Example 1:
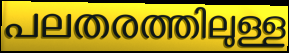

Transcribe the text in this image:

പലതരത്തിലുള്ള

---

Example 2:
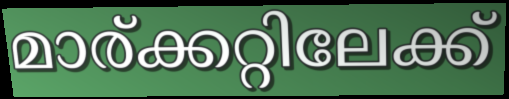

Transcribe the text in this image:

മാര്ക്കറ്റിലേക്ക്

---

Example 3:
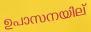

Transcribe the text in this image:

ഉപാസനയില്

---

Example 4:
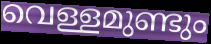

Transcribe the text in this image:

വെള്ളമുണ്ടും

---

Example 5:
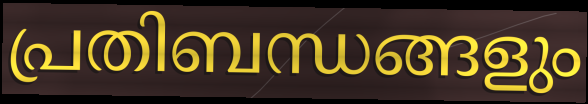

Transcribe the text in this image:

പ്രതിബന്ധങ്ങളും